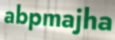
abpmajha